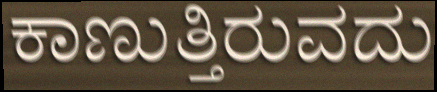
ಕಾಣುತ್ತಿರುವದು